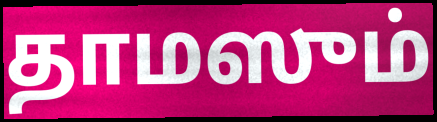
தாமஸும்